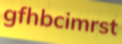
gfhbcimrst